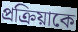
প্রক্রিয়াকে